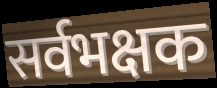
सर्वभक्षक